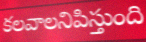
కలవాలనిపిస్తుంది